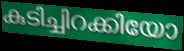
കുടിച്ചിറക്കിയോ